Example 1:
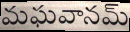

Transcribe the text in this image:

మఘవానమ్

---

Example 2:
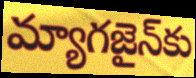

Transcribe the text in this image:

మ్యాగజైన్‌కు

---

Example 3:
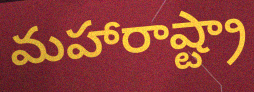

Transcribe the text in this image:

మహారాష్ట్రా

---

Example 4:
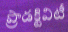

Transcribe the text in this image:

ప్రొడక్టివిటీ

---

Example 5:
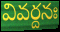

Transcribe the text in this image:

వివర్దనః